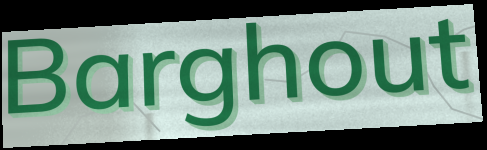
Barghout